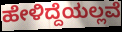
ಹೇಳಿದ್ದೆಯಲ್ಲವೆ